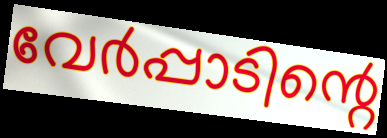
വേർപ്പാടിന്റെ